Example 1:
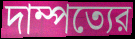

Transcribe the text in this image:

দাম্পত্যের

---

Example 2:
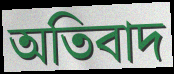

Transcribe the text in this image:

অতিবাদ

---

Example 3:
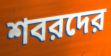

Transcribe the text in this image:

শবরদের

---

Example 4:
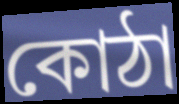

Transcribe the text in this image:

কোঠা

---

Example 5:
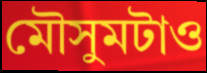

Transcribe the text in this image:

মৌসুমটাও